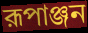
রূপাঞ্জন